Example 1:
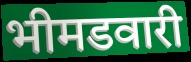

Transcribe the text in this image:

भीमडवारी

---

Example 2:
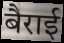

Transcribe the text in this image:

बैराई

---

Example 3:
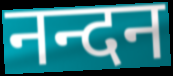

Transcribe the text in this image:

नन्‍दन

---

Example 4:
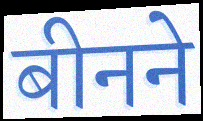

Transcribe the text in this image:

बीनने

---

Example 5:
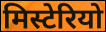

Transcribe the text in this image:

मिस्टेरियो